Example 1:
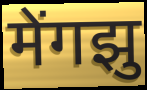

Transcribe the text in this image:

मेंगझु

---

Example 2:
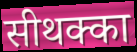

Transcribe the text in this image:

सीथक्का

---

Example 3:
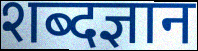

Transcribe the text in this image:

शब्दज्ञान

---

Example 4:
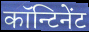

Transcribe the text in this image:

कॉन्टिनेंट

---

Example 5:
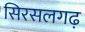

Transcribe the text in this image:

सिरसलगढ़